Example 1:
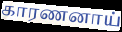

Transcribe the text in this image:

காரணனாய்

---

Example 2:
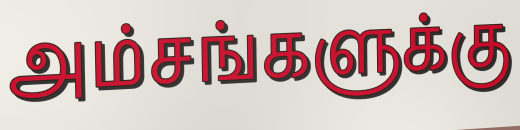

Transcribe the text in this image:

அம்சங்களுக்கு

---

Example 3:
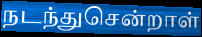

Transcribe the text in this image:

நடந்துசென்றாள்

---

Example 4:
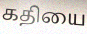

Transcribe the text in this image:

கதியை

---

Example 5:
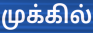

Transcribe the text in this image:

முக்கில்